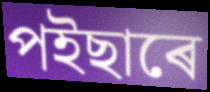
পইছাৰে